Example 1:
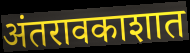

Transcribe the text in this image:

अंतरावकाशात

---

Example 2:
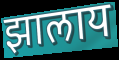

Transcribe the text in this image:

झालाय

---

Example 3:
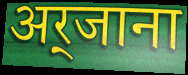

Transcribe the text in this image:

अर्जाना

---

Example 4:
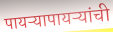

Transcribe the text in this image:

पायऱ्यापायऱ्यांची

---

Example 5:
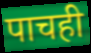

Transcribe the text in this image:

पाचही